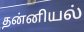
தன்னியல்